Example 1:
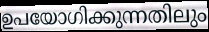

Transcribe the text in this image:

ഉപയോഗിക്കുന്നതിലും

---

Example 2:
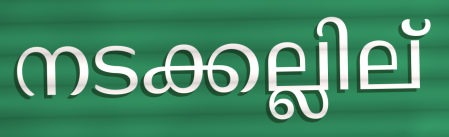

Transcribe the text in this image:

നടക്കല്ലില്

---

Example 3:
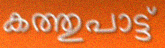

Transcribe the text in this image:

കത്തുപാട്ട്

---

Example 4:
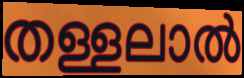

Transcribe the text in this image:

തള്ളലാൽ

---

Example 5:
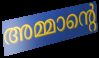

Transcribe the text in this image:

അമ്മാന്റെ